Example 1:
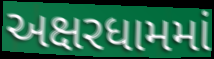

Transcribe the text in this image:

અક્ષરધામમાં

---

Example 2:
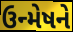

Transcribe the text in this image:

ઉન્મેષને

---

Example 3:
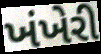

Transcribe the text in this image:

ખંખેરી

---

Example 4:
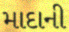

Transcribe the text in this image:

માદાની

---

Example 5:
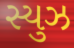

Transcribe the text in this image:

સ્યુઝ